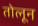
तोलून